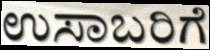
ಉಸಾಬರಿಗೆ